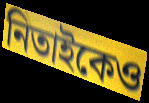
নিতাইকেও